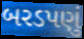
બરડપણું